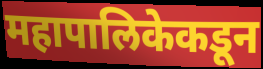
महापालिकेकडून